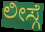
ಲೀಸ್ಗೆ